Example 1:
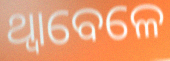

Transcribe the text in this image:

ଥ୍ବାବେଳେ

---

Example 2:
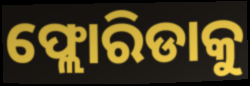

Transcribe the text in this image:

ଫ୍ଲୋରିଡାକୁ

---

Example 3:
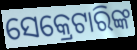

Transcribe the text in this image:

ସେକ୍ରେଟାରିଙ୍କ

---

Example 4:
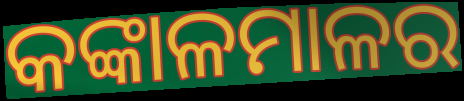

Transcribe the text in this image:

କଙ୍କାଳମାଳର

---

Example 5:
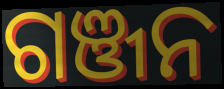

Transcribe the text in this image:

ଗଞ୍ଜନ